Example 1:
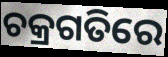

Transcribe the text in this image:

ଚକ୍ରଗତିରେ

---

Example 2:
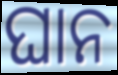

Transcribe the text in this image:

ଘାନ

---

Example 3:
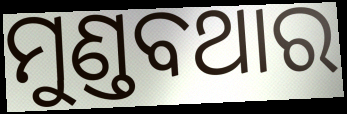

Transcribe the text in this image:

ମୁଣ୍ଡବଥାର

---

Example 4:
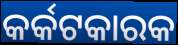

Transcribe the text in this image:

କର୍କଟକାରକ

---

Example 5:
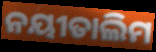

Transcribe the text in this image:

ନୟୀତାଲିମ